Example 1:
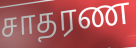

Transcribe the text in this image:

சாதரண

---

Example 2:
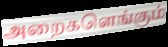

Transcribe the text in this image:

அறைகளெங்கும்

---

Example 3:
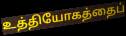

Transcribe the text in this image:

உத்தியோகத்தைப்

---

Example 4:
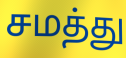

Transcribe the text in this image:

சமத்து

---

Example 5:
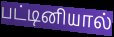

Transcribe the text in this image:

பட்டினியால்